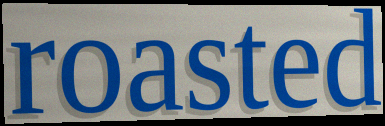
roasted